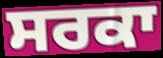
ਸਰਕਾ